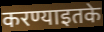
करण्याइतके